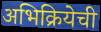
अभिक्रियेची